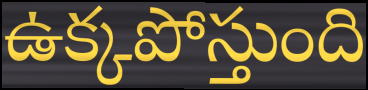
ఉక్కపోస్తుంది